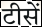
टीसें